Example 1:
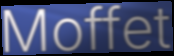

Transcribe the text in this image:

Moffet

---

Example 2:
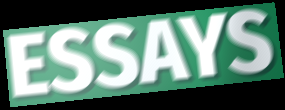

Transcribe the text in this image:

ESSAYS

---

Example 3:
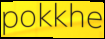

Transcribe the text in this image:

pokkhe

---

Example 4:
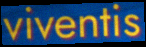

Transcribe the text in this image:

viventis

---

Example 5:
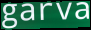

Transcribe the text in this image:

garva